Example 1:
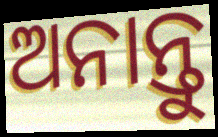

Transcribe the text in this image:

ଅନାନ୍ତୁ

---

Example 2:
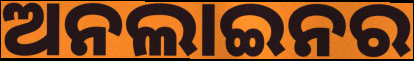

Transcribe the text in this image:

ଅନଲାଇନର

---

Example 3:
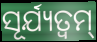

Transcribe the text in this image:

ସୂର୍ଯ୍ୟତ୍ୱମ୍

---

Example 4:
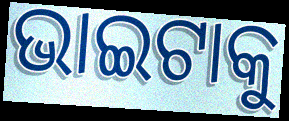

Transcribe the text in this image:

ଭାଇଟାକୁ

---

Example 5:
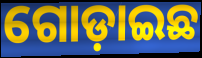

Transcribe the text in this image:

ଗୋଡ଼ାଇଛ